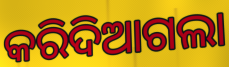
କରିଦିଆଗଲା